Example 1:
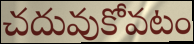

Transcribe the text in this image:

చదువుకోవటం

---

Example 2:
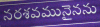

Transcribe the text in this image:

నరశవమునైనను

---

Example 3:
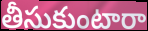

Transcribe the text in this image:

తీసుకుంటారా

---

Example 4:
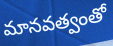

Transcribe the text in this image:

మానవత్వంతో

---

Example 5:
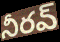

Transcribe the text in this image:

నీరవ్